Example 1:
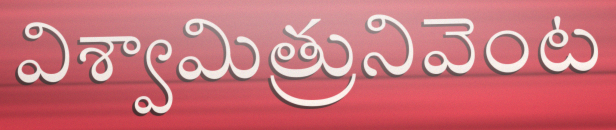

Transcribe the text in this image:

విశ్వామిత్రునివెంట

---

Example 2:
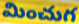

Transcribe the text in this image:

మించుగ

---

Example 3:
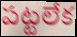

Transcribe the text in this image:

పట్టలేక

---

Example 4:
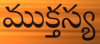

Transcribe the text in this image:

ముక్తస్య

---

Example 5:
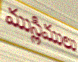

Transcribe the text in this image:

ముస్లిములు